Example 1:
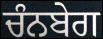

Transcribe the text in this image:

ਚੰਨਬੇਗ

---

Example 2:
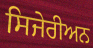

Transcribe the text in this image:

ਸਿਜੇਰੀਅਨ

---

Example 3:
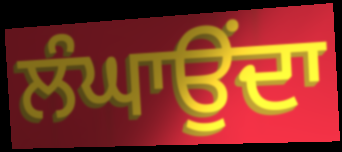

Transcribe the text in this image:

ਲੰਘਾਉਂਦਾ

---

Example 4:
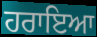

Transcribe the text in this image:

ਹਰਾਇਆ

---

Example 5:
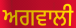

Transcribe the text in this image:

ਅਗਵਾਲੀ